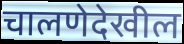
चालणेदेखील